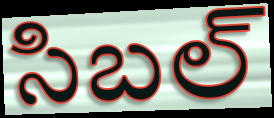
సిబల్